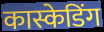
कास्केडिंग